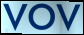
vov